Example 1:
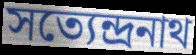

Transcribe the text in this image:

সত্যেন্দ্রনাথ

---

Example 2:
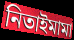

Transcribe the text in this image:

নিতাইমামা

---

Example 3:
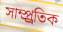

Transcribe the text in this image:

সাম্প্র্রতিক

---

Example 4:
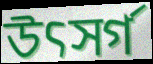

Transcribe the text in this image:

উৎসর্গ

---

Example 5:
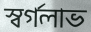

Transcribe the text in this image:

স্বর্গলাভ